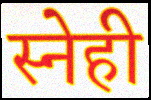
स्नेही